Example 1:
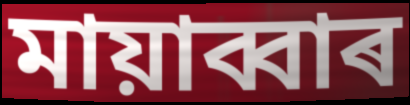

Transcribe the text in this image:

মায়াব্বাৰ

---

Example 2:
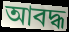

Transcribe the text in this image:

আবদ্ধ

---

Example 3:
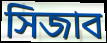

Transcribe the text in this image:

সিজাব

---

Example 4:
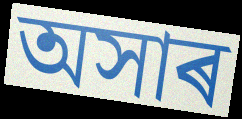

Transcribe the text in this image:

অসাৰ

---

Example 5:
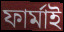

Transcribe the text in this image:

ফাৰ্মাই